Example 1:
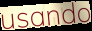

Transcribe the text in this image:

usando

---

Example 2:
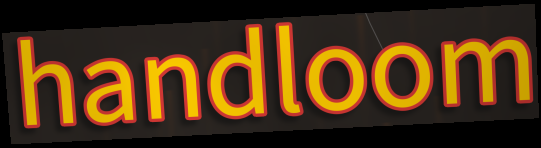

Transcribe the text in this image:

handloom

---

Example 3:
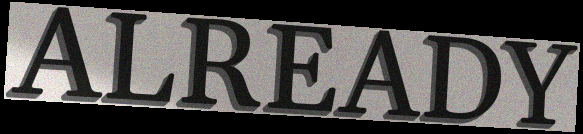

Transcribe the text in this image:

ALREADY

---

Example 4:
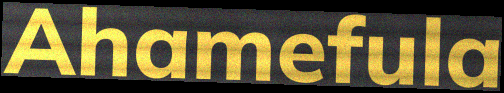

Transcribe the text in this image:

Ahamefula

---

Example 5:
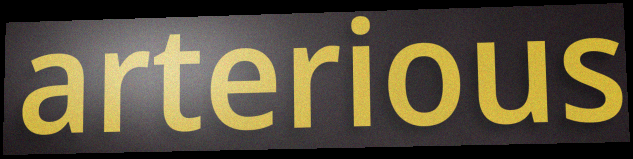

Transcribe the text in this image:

arterious